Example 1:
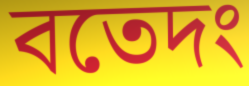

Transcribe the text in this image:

বতেদং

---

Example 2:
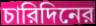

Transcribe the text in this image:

চারিদিনের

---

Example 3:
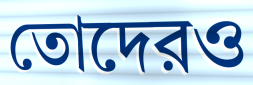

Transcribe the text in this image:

তোদেরও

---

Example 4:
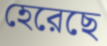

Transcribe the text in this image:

হেরেছে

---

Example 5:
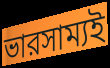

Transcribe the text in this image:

ভারসাম্যই